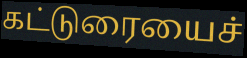
கட்டுரையைச்